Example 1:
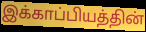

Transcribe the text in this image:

இக்காப்பியத்தின்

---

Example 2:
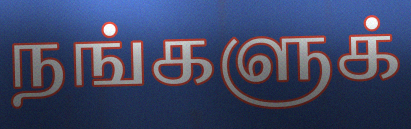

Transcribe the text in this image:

நங்களுக்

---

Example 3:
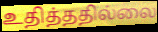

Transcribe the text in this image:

உதித்ததில்லை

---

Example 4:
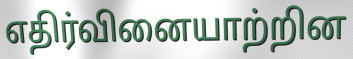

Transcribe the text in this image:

எதிர்வினையாற்றின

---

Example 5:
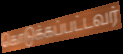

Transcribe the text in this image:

கொடுக்கப்பட்டவர்